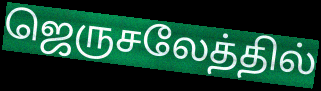
ஜெருசலேத்தில்